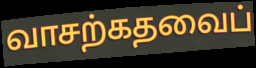
வாசற்கதவைப்